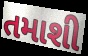
તમાશી